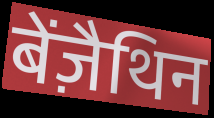
बेंज़ैथिन